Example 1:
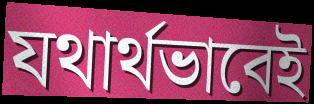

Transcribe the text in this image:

যথার্থভাবেই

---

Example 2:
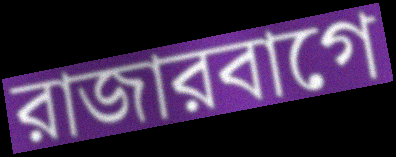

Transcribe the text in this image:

রাজারবাগে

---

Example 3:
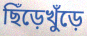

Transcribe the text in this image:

ছিঁড়েখুঁড়ে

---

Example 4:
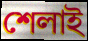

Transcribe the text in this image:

শেলাই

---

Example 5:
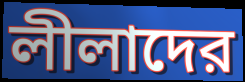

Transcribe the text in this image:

লীলাদের